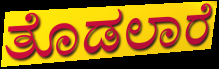
ತೊಡಲಾರೆ